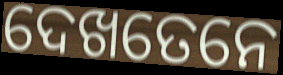
ଦେଖତେନେ